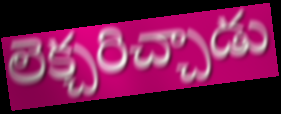
లెక్చరిచ్చాడు